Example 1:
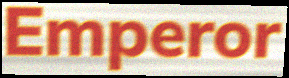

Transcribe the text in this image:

Emperor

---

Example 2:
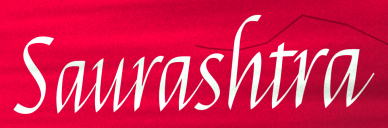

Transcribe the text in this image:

Saurashtra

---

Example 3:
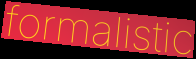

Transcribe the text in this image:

formalistic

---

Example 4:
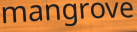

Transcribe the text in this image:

mangrove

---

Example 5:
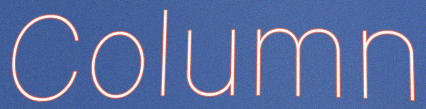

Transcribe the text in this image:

Column